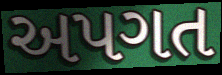
અપગત